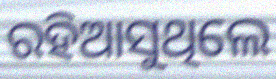
ରହିଆସୁଥିଲେ